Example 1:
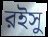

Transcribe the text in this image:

রইসু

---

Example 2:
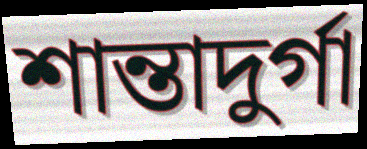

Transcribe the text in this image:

শান্তাদুর্গা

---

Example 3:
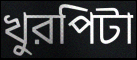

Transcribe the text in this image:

খুরপিটা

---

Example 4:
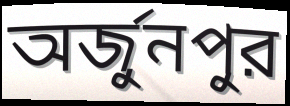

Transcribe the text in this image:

অর্জুনপুর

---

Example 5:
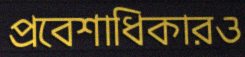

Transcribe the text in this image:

প্রবেশাধিকারও